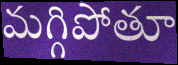
మగ్గిపోతూ